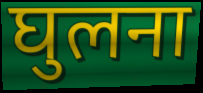
घुलना